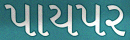
પાયપર